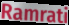
Ramrati